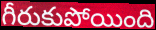
గీరుకుపోయింది